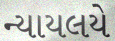
ન્યાયલયે